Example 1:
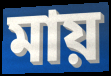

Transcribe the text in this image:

মায়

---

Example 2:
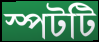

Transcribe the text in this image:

স্পটটি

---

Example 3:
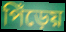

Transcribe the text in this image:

পিঁড়েয়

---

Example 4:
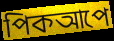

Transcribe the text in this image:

পিকআপে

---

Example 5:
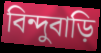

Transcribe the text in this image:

বিন্দুবাড়ি